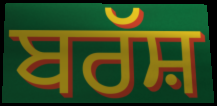
ਬਰੱਸ਼